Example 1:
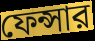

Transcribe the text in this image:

ফেন্সার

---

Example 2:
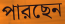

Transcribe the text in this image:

পারছেন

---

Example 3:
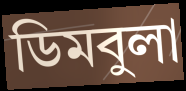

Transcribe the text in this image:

ডিমবুলা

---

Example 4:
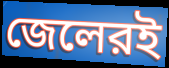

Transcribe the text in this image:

জেলেরই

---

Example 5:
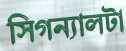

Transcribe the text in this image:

সিগন্যালটা